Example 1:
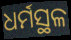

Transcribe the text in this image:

ଧର୍ମସ୍ଥଳ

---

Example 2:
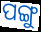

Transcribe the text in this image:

ପଙ୍ଗୁ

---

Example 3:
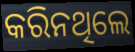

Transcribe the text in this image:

କରିନଥିଲେ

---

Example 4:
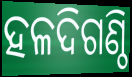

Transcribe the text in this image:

ହଳଦିଗଣ୍ଠି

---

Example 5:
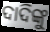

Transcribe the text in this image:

ଦାଦିଙ୍କୁ